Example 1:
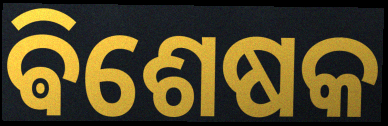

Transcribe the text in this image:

ଵିଶେଷକ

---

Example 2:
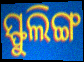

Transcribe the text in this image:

ସ୍ଫୁଲିଙ୍ଗ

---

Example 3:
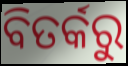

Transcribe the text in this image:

ବିତର୍କରୁ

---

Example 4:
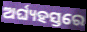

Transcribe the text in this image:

ଅର୍ଘ୍ୟହସ୍ତରେ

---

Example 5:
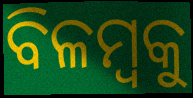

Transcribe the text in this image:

ବିଳମ୍ୱକୁ